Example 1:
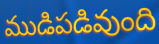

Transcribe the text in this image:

ముడిపడివుంది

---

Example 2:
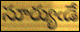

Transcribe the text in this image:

సూర్యుఁడే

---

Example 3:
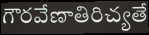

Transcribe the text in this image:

గౌరవేణాతిరిచ్యతే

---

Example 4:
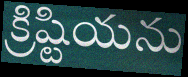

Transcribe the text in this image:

క్రిష్టియను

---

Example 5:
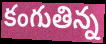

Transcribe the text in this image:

కంగుతిన్న